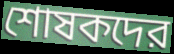
শোষকদের